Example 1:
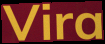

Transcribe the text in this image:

Vira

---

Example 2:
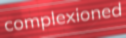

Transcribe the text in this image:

complexioned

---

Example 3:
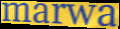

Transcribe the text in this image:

marwa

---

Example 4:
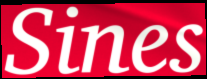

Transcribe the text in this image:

Sines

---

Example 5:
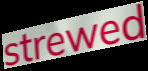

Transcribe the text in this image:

strewed